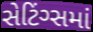
સેટિંગ્સમાં